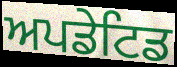
ਅਪਡੇਟਿਡ